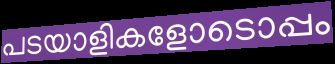
പടയാളികളോടൊപ്പം